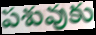
పశువుకు